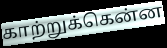
காற்றுக்கென்ன